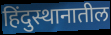
हिंदुस्थानातील